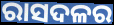
ରାସଦଳର